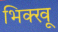
भिक्‍खू